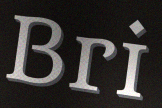
Bri